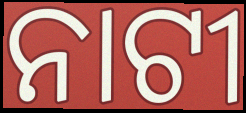
ନାଟୀ